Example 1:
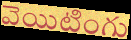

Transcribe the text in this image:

వెయిటింగు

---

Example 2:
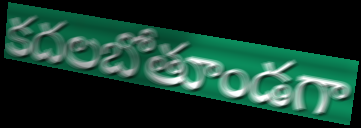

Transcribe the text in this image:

కదలబోతూండగా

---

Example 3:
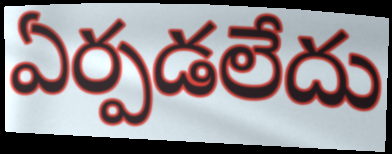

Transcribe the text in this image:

ఏర్పడలేదు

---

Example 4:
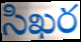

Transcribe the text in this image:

సిఖర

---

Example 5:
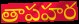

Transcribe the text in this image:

తాపహర